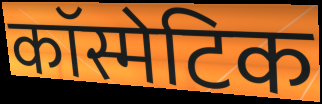
कॉस्मेटिक